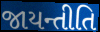
જાયન્તીતિ